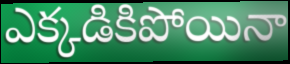
ఎక్కడికిపోయినా